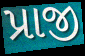
પ્રાજી